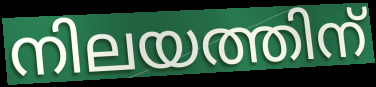
നിലയത്തിന്